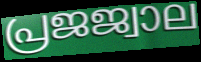
പ്രജജ്വാല